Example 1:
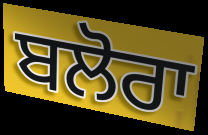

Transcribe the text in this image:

ਬਲੋਰਾ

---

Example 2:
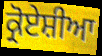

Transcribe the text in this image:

ਕ੍ਰੋਏਸ਼ੀਆ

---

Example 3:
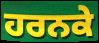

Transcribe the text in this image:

ਹਰਨਕੇ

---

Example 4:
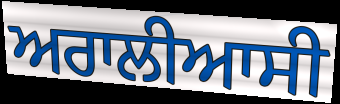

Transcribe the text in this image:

ਅਰਾਲੀਆਸੀ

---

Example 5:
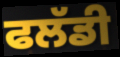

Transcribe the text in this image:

ਫਲੱਡੀ